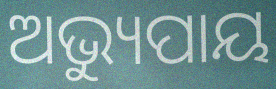
ଅଭ୍ୟୁପାୟ